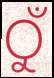
ଠୁଁ